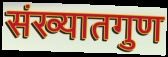
संख्यातगुण